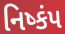
નિષ્કંપ